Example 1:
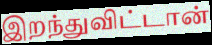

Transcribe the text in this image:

இறந்துவிட்டான்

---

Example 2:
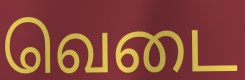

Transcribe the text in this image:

வெடை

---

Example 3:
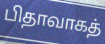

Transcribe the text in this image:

பிதாவாகத்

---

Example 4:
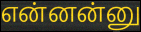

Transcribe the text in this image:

என்னன்னு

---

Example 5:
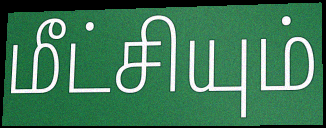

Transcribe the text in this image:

மீட்சியும்